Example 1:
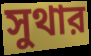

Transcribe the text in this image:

সুথার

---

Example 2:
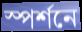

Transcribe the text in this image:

স্পর্শনে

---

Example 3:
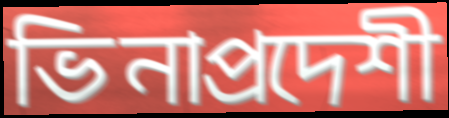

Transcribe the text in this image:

ভিনাপ্রদেশী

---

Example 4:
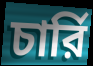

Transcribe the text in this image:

চার্রি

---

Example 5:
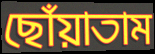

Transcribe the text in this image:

ছোঁয়াতাম